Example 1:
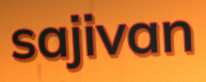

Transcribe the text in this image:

sajivan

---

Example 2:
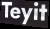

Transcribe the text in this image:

Teyit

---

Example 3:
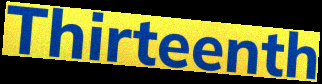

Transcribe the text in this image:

Thirteenth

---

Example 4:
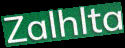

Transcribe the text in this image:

Zalhlta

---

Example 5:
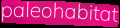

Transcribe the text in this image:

paleohabitat